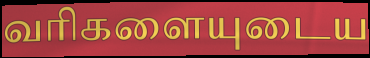
வரிகளையுடைய